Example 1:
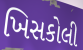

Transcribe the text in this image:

ખિસકોલી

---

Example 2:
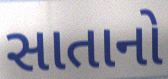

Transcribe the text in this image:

સાતાનો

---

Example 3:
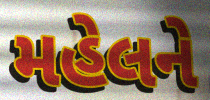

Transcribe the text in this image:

મહેલને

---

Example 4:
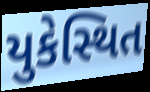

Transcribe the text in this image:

યુકેસ્થિત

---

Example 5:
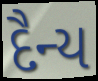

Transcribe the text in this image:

દૈન્ય